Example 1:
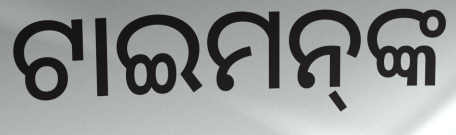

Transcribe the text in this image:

ଟାଇମନ୍‌ଙ୍କ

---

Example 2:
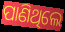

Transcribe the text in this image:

ପାଣିଥିଲେ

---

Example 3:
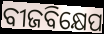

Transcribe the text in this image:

ବୀଜବିକ୍ଷେପ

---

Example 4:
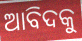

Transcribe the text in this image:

ଆବିଦକୁ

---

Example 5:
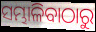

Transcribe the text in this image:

ସମ୍ଭାଳିବାଠାରୁ